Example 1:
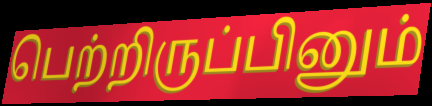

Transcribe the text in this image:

பெற்றிருப்பினும்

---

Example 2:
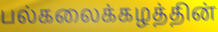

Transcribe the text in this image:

பல்கலைக்கழத்தின்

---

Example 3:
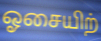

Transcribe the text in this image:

ஓசையிற்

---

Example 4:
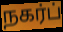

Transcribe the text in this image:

நகர்ப்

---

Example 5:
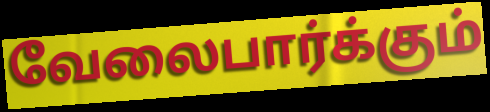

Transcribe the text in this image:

வேலைபார்க்கும்